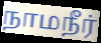
நாமநீர்